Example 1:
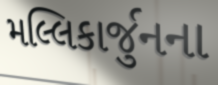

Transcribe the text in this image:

મલ્લિકાર્જુનના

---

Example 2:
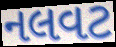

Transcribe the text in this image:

નલવટ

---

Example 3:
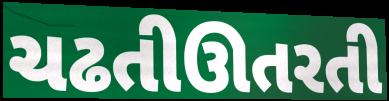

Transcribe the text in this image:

ચઢતીઊતરતી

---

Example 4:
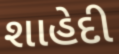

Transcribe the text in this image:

શાહેદી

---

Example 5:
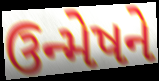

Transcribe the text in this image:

ઉન્મેષને